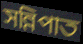
সন্নিপাত